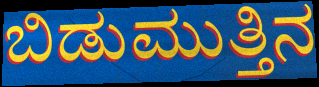
ಬಿಡುಮುತ್ತಿನ